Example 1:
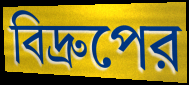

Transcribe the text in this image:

বিদ্রুপের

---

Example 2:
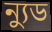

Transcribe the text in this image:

ন্যুড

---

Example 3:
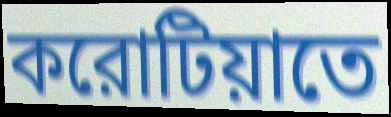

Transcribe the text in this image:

করোটিয়াতে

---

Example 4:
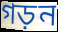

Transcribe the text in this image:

গড়ন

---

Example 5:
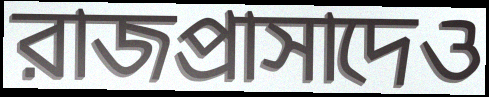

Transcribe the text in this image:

রাজপ্রাসাদেও